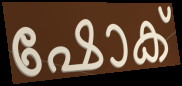
ഷോക്